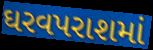
ઘરવપરાશમાં